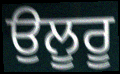
ਉਲੂਰੂ